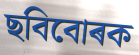
ছবিবোৰক